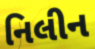
નિલીન